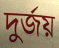
দুর্জয়